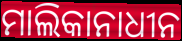
ମାଲିକାନାଧୀନ